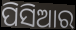
ପିସିଆର